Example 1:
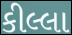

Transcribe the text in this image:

કીલ્લા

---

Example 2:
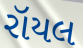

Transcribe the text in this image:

રૉયલ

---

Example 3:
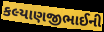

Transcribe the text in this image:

કલ્યાણજીભાઈની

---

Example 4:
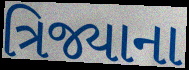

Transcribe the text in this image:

ત્રિજ્યાના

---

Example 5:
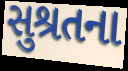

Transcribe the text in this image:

સુશ્રતના